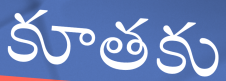
కూతకు